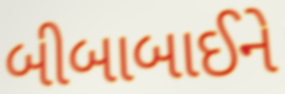
બીબાબાઈને